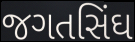
જગતસિંઘ